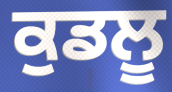
ਕੁਡਲੂ